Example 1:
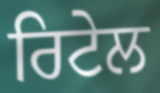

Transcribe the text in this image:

ਰਿਟੇਲ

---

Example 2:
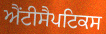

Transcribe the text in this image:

ਐਂਟੀਸੈਪਟਿਕਸ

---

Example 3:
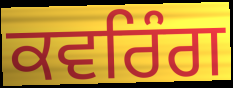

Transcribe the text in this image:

ਕਵਰਿੰਗ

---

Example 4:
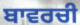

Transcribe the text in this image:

ਬਾਵਰਚੀ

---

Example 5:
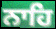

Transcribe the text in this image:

ਨਾਹਿ